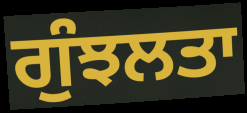
ਗੁੰਝਲਤਾ